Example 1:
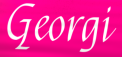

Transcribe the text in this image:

Georgi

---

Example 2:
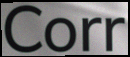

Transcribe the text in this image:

Corr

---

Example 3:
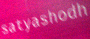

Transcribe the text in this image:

satyashodh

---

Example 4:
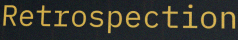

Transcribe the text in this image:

Retrospection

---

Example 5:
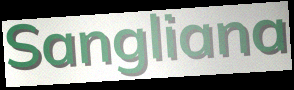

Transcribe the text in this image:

Sangliana